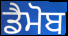
ਡੈਮੋਬ